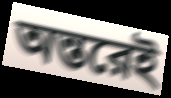
অন্তরেই